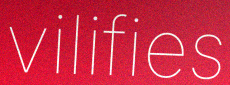
vilifies